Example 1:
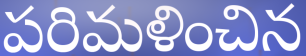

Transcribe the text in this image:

పరిమళించిన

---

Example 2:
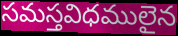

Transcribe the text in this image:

సమస్తవిధములైన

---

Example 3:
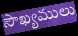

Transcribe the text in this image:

సౌఖ్యములు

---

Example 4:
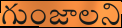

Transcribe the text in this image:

గుంజాలని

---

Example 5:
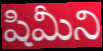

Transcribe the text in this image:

షిమీని